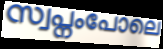
സ്വപ്നംപോലെ